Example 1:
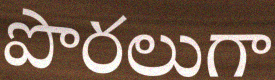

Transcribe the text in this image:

పొరలుగా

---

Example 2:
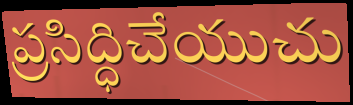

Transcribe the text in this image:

ప్రసిద్ధిచేయుచు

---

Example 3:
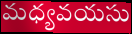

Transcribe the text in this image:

మధ్యవయసు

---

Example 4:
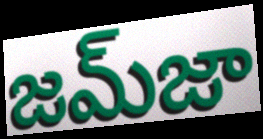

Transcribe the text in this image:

జమ్‌జా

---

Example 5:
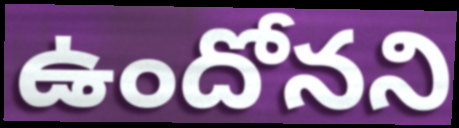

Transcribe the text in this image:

ఉందోనని